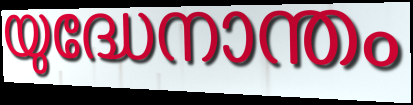
യുദ്ധേനാന്തം